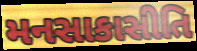
મનસાકાસીતિ